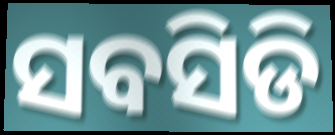
ସବସିଡି